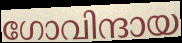
ഗോവിന്ദായ